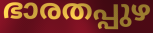
ഭാരതപ്പുഴ